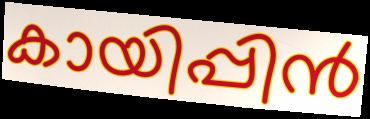
കായിപ്പിൻ